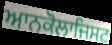
ਆਨਕੋਲਾਜਿਸਟ